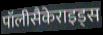
पॉलीसैकेराइड्स